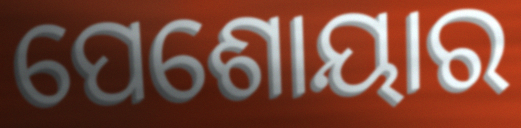
ପେଶୋୟାର